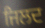
ਜਿਲਦ